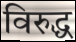
विरुद्ध